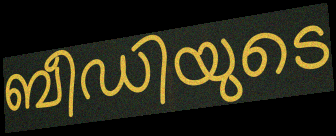
ബീഡിയുടെ